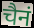
चैनं